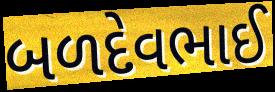
બળદેવભાઈ